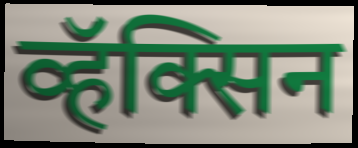
व्हॅक्सिन